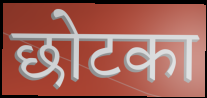
छोटका